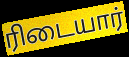
ரிடையார்